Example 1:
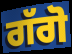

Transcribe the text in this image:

ਗੱਗੋ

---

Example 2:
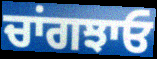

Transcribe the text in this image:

ਚਾਂਗਝਾਓ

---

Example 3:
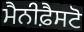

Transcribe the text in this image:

ਮੈਨੀਫ਼ੈਸਟੋ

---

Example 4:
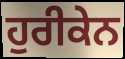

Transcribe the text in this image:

ਹੁਰੀਕੇਨ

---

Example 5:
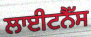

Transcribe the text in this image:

ਲਾਈਟਨੈੱਸ